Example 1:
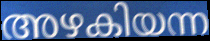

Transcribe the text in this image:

അഴകിയന്ന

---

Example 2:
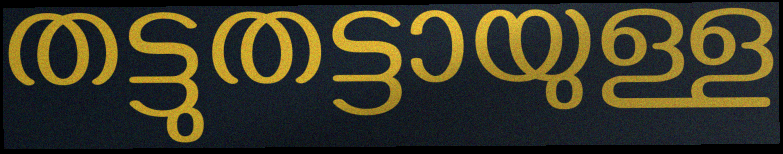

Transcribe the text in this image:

തട്ടുതട്ടായുള്ള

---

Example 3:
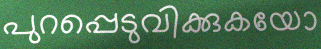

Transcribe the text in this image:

പുറപ്പെടുവിക്കുകയോ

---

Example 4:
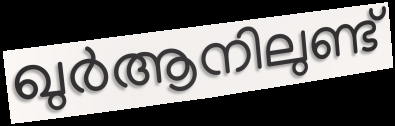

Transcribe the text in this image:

ഖുർആനിലുണ്ട്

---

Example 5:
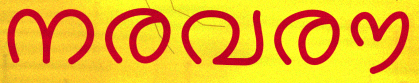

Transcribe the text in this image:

നരവരൗ